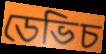
ডেভিচ